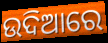
ଉଦିଆରେ